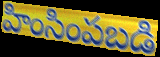
హింసింపబడి